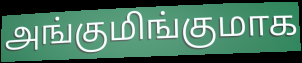
அங்குமிங்குமாக